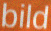
bild